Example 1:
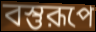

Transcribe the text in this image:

বস্তুরূপে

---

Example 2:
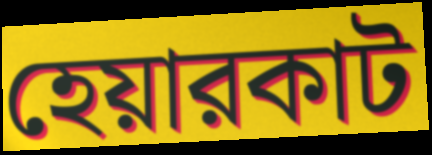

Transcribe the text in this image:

হেয়ারকাট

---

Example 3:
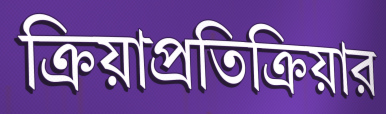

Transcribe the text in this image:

ক্রিয়াপ্রতিক্রিয়ার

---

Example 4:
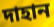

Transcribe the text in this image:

দাহান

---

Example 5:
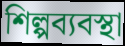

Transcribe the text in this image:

শিল্পব্যবস্থা